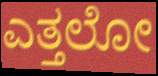
ಎತ್ತಲೋ